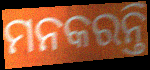
ମନକରନ୍ତି